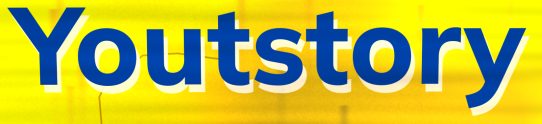
Youtstory